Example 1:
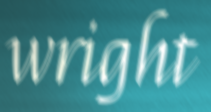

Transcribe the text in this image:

wright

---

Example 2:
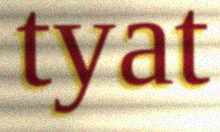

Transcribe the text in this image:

tyat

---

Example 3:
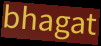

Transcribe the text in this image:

bhagat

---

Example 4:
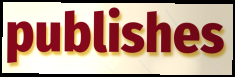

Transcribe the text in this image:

publishes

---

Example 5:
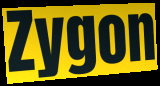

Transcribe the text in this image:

Zygon